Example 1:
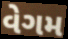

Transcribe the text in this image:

વેગમ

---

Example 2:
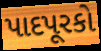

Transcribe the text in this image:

પાદપૂરકો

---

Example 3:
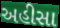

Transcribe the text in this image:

અહીસા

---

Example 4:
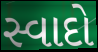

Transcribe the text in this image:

સ્વાદો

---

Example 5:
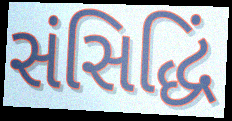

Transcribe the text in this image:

સંસિદ્ધિં